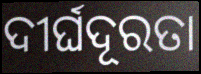
ଦୀର୍ଘଦୂରତା